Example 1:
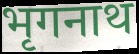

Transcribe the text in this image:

भृगनाथ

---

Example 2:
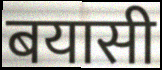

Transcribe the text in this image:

बयासी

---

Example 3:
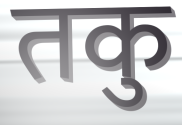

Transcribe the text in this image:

तकु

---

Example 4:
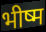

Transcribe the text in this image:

भीष्म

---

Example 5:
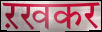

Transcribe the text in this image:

ऱखकर